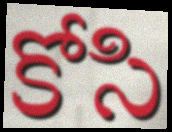
కోసి